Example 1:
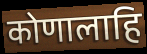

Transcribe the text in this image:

कोणालाहि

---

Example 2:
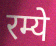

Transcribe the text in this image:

रम्ये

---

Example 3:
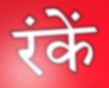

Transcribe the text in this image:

रंकें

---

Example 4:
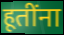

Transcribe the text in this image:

हूतींना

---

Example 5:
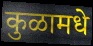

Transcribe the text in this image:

कुळामधे